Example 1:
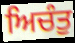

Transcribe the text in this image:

ਅਿਚੰਤੁ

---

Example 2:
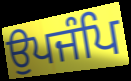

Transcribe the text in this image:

ਉਪਜੰਪਿ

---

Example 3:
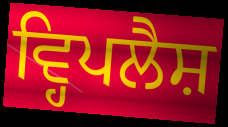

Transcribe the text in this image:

ਵ੍ਹਿਪਲੈਸ਼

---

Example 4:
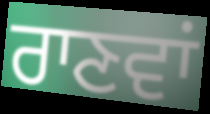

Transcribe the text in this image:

ਰਾਣਵਾਂ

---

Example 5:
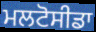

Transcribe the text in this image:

ਮਲਟੋਸੀਡਾ